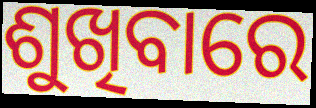
ଶୁଖିବାରେ